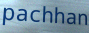
pachhan